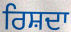
ਰਿਸ਼ਦਾ